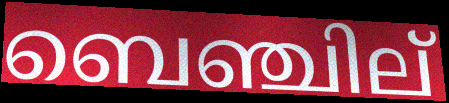
ബെഞ്ചില്